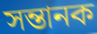
সন্তানক